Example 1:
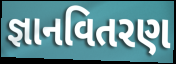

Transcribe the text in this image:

જ્ઞાનવિતરણ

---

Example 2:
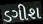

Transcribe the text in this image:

ડગીશ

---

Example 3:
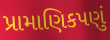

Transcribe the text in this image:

પ્રામાણિકપણું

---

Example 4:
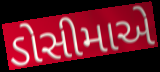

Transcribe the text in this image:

ડોસીમાએ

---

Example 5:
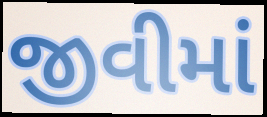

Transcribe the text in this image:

જીવીમાં